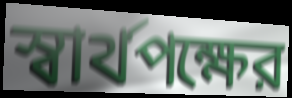
স্বার্থপক্ষের